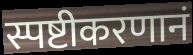
स्पष्टीकरणानं